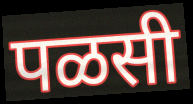
पळसी